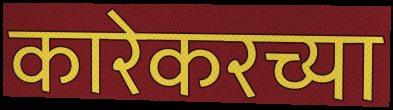
कारेकरच्या